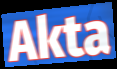
Akta